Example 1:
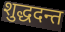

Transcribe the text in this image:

शुद्धदन्त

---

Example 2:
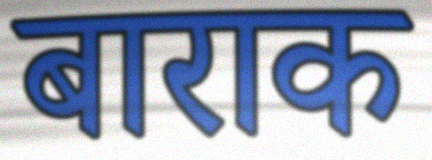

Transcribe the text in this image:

बाराक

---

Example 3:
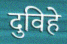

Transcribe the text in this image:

दुविहे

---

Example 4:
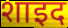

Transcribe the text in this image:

शाइद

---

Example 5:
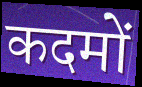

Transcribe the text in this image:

कदमों